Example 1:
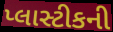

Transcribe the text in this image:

પ્લાસ્ટીકની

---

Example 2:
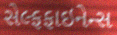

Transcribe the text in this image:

સેલ્ફફાઇનેન્સ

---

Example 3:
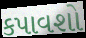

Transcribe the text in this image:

કપાવશો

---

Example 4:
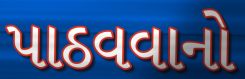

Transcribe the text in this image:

પાઠવવાનો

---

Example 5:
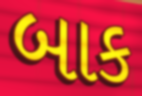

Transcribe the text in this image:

બાક